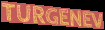
TURGENEV